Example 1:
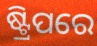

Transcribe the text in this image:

ଷ୍ଟ୍ରିପରେ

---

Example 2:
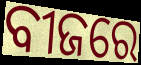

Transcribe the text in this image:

ବୀଜରେ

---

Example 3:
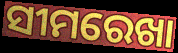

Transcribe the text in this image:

ସୀମରେଖା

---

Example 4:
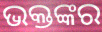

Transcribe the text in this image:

ଭକ୍ତଙ୍କର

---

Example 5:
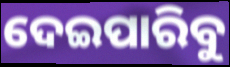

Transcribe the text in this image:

ଦେଇପାରିବୁ